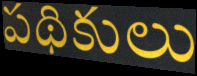
పథికులు